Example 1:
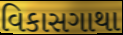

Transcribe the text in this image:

વિકાસગાથા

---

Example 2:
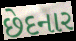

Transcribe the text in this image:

છેદનાર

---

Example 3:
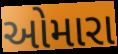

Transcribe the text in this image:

ઓમારા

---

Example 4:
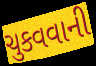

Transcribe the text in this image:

ચુકવવાની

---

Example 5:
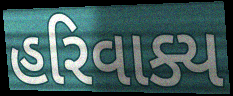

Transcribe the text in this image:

હરિવાક્ય